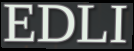
EDLI